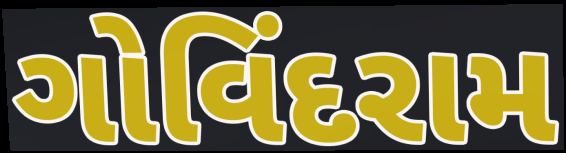
ગોવિંદરામ